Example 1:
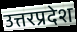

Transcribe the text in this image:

उत्तरप्रदेश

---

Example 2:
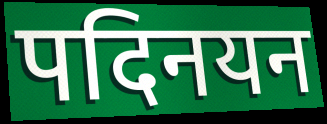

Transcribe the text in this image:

पदिनयन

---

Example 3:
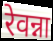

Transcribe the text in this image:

रेवन्ना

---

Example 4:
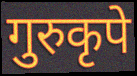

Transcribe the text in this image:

गुरुकृपे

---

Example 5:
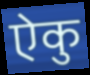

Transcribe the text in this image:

ऐकु